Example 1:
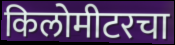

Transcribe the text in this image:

किलोमीटरचा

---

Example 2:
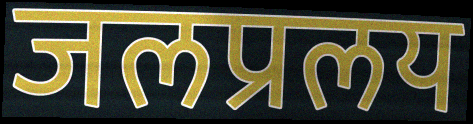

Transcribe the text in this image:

जलप्रलय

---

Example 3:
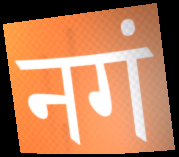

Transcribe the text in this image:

नगं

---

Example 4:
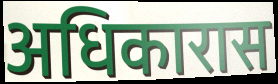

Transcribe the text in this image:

अधिकारास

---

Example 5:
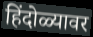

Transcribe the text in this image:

हिंदोळ्यावर